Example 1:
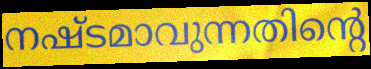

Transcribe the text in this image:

നഷ്ടമാവുന്നതിന്റെ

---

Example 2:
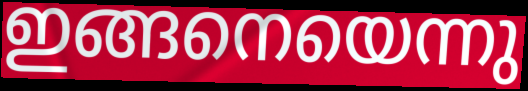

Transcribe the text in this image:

ഇങ്ങനെയെന്നു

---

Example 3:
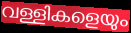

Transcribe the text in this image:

വള്ളികളെയും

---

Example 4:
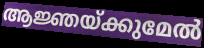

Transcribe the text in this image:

ആജ്ഞയ്ക്കുമേൽ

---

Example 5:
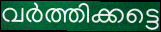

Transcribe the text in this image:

വർത്തിക്കട്ടെ